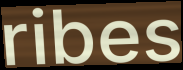
ribes